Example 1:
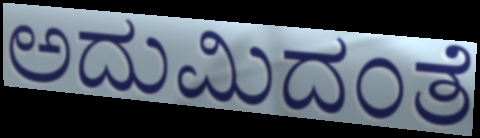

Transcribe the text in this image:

ಅದುಮಿದಂತೆ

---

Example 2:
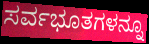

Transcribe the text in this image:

ಸರ್ವಭೂತಗಳನ್ನೂ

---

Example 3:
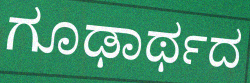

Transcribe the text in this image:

ಗೂಢಾರ್ಥದ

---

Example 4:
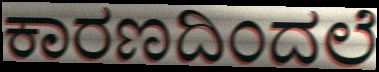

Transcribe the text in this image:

ಕಾರಣದಿಂದಲೆ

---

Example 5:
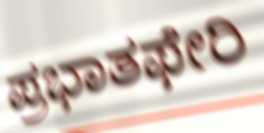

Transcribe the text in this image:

ಪ್ರಭಾತಫೇರಿ